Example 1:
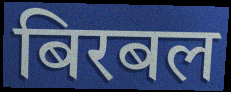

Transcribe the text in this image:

बिरबल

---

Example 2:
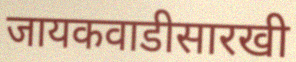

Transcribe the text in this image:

जायकवाडीसारखी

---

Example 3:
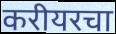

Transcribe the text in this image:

करीयरचा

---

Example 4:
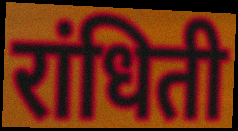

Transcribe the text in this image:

रांधिती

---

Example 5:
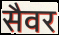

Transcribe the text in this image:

सैवर